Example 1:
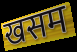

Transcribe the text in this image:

खसम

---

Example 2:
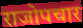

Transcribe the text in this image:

राजोपचार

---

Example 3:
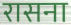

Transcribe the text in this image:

रासना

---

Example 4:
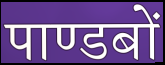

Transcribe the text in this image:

पाण्डबों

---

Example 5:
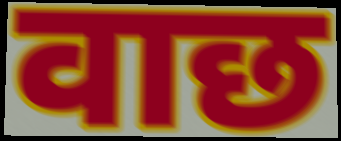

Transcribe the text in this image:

वाछ